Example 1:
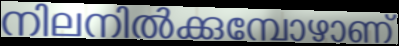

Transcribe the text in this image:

നിലനിൽക്കുമ്പോഴാണ്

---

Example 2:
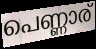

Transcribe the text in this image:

പെണ്ണാര്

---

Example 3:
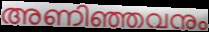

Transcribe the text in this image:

അണിഞ്ഞവനും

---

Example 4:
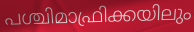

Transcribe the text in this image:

പശ്ചിമാഫ്രിക്കയിലും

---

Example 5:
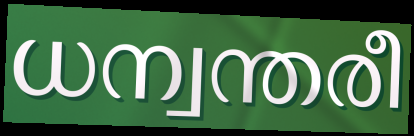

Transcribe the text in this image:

ധന്വന്തരീ